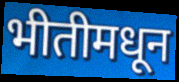
भीतीमधून